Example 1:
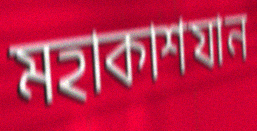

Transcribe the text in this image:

মহাকাশযান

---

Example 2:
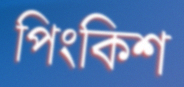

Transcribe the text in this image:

পিংকিশ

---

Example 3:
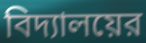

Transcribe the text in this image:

বিদ্যালয়ের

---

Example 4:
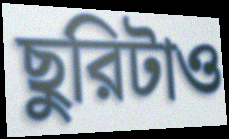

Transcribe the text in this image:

ছুরিটাও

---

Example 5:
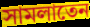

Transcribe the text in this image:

সামলাতেন